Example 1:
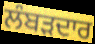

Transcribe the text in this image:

ਲੰਬੜਦਾਰ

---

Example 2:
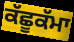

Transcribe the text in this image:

ਕੱਛੂਕੱਮਾ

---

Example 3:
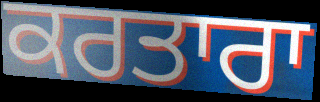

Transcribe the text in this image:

ਕਰਤਾਰਾ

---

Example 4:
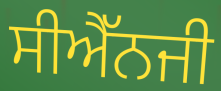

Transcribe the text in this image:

ਸੀਐੱਨਜੀ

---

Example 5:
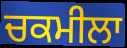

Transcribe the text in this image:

ਚਕਮੀਲਾ